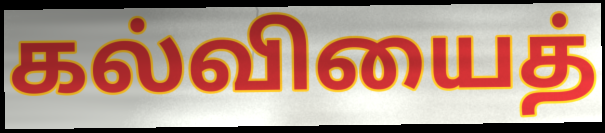
கல்வியைத்